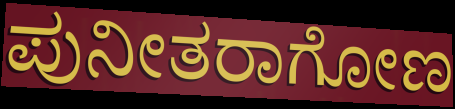
ಪುನೀತರಾಗೋಣ